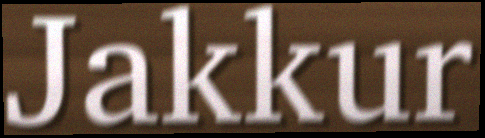
Jakkur